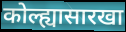
कोल्ह्यासारखा